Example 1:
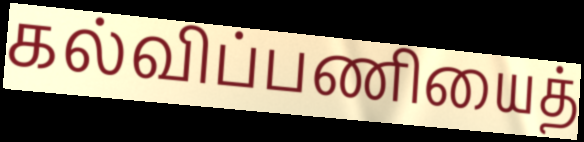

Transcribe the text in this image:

கல்விப்பணியைத்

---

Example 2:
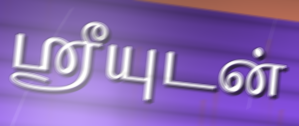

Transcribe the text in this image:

ஸ்ரீயுடன்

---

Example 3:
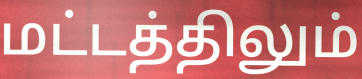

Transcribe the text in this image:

மட்டத்திலும்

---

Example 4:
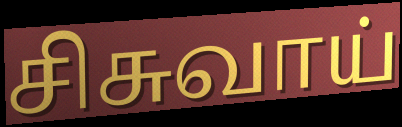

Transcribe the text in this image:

சிசுவாய்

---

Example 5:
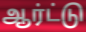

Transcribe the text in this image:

ஆர்ட்டு